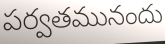
పర్వతమునందు